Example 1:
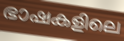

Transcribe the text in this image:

ഭാഷകളിലെ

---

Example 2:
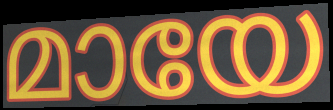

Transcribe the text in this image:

മായേ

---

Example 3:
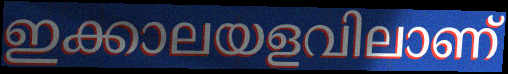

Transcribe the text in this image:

ഇക്കാലയളവിലാണ്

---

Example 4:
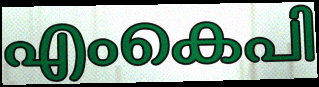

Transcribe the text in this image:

എംകെപി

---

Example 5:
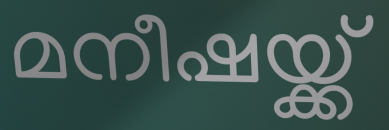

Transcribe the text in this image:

മനീഷയ്ക്ക്